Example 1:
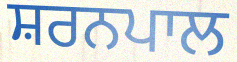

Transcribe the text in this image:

ਸ਼ਰਨਪਾਲ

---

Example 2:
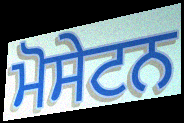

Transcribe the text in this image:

ਮੋਸੇਟਨ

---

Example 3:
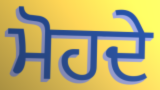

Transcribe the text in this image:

ਮੋਹਦੇ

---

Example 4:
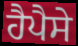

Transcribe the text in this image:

ਹੈਪੈਸੇ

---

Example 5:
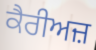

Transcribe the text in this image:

ਕੈਰੀਅਜ਼